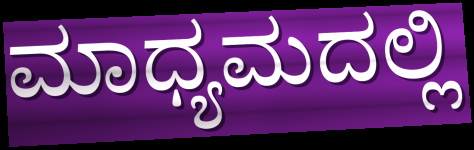
ಮಾಧ್ಯಮದಲ್ಲಿ